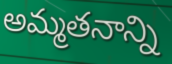
అమ్మతనాన్ని